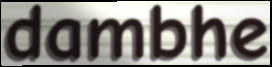
dambhe